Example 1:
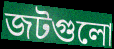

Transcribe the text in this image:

জটগুলো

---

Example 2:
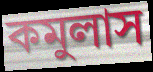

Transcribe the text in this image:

কমুলাস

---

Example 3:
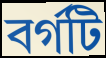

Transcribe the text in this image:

বর্গটি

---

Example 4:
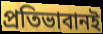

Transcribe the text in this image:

প্রতিভাবানই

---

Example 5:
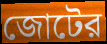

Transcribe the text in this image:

জোটের